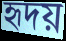
হৃদয়